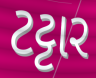
ટટ્ટાર